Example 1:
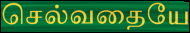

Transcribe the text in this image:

செல்வதையே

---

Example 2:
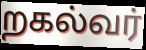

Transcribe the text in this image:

றகல்வர்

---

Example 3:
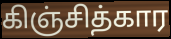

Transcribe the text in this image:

கிஞ்சித்கார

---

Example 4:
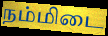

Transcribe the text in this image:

நம்மிடை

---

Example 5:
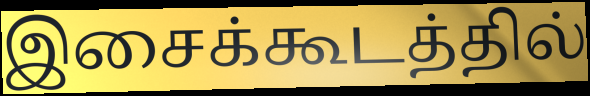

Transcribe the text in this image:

இசைக்கூடத்தில்